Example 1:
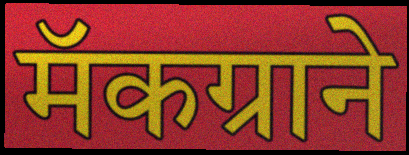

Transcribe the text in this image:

मॅकग्राने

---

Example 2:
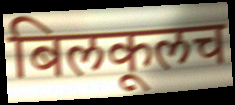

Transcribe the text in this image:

बिलकूलच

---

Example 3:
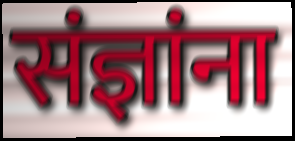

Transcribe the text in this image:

संज्ञांना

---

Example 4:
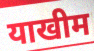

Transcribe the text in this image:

याखीम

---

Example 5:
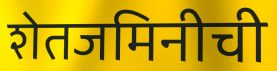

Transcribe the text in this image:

शेतजमिनीची